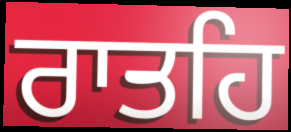
ਰਾਤਹਿ